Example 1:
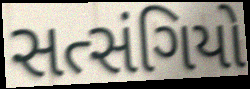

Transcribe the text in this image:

સત્સંગિયો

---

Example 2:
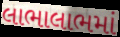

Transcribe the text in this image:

લાભાલાભમાં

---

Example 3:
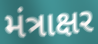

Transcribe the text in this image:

મંત્રાક્ષર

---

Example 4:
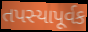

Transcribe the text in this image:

તપસ્યાપૂર્વક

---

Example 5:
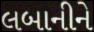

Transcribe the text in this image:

લબાનીને